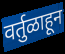
वर्तुळाहून